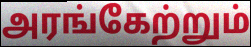
அரங்கேற்றும்